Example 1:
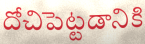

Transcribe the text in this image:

దోచిపెట్టడానికి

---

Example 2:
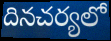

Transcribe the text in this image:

దినచర్యలో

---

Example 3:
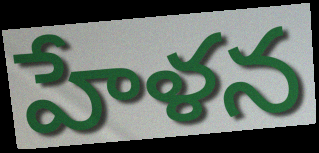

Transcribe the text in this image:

హేళన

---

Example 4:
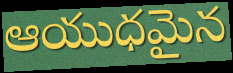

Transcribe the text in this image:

ఆయుధమైన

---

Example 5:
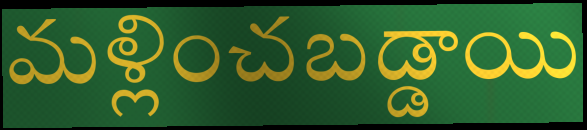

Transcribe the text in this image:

మళ్లించబడ్డాయి